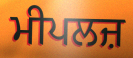
ਮੀਪਲਜ਼